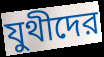
যুথীদের